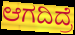
ಆಗದಿದ್ರೆ